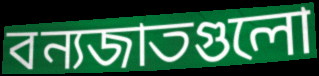
বন্যজাতগুলো